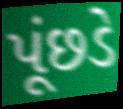
પૂંછડે